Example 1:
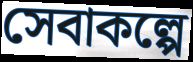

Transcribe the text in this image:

সেবাকল্পে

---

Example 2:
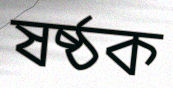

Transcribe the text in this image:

ষষ্ঠক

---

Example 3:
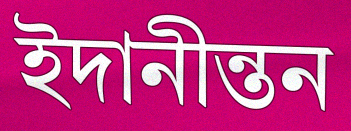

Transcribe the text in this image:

ইদানীন্তন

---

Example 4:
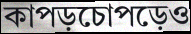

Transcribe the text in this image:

কাপড়চোপড়েও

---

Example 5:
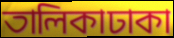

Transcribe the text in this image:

তালিকাঢাকা